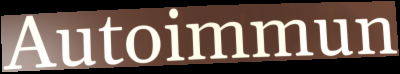
Autoimmun